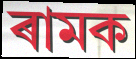
ৰামক